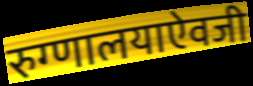
रुग्णालयाऐवजी